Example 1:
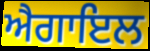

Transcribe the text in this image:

ਐਗਾਇਲ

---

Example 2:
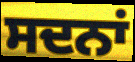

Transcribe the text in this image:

ਸਦਨਾਂ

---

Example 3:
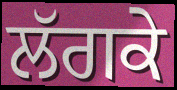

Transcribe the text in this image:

ਲੱਗਕੇ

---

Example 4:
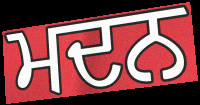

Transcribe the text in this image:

ਮਦਨ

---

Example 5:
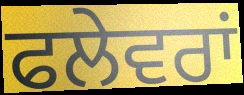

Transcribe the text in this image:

ਫਲੇਵਰਾਂ